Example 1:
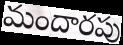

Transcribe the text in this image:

మందారపు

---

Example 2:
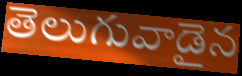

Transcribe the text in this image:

తెలుగువాడైన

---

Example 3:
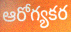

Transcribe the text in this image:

ఆరోగ్యకర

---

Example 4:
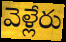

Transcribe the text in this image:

వెళ్లేరు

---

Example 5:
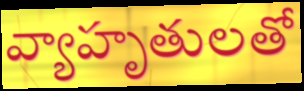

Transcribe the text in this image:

వ్యాహృతులతో